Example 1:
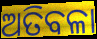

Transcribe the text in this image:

ଅତିବଳା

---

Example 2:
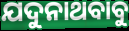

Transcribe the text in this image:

ଯଦୁନାଥବାବୁ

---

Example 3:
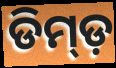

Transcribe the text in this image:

ଡିମ୍ଡ଼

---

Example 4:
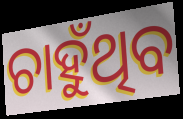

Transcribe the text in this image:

ଚାହୁଁଥିବ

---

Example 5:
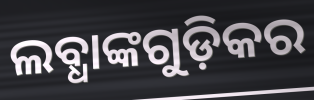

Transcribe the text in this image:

ଲବ୍ଧାଙ୍କଗୁଡ଼ିକର